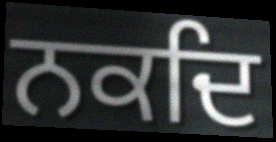
ਨਕਦਿ